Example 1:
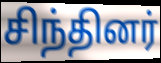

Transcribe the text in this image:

சிந்தினர்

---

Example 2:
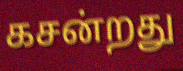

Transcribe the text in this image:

கசன்றது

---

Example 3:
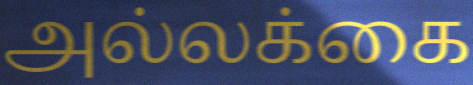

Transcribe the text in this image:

அல்லக்கை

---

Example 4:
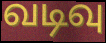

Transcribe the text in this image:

வடிவு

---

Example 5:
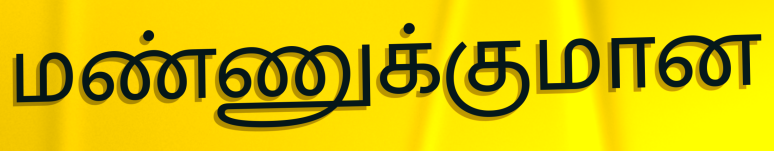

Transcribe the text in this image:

மண்ணுக்குமான